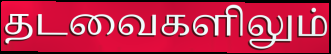
தடவைகளிலும்